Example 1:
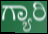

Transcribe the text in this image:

ಗ್ಯಾರಿ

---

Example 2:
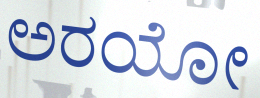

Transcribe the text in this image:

ಅರಯೋ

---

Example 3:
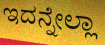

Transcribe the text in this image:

ಇದನ್ನೇಲ್ಲಾ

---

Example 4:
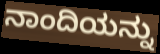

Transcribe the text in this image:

ನಾಂದಿಯನ್ನು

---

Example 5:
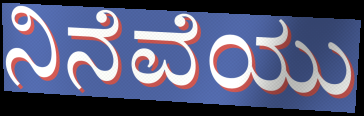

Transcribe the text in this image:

ನಿನೆವೆಯು